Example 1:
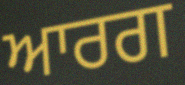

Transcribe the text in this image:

ਆਰਗ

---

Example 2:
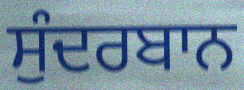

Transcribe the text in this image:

ਸੁੰਦਰਬਾਨ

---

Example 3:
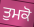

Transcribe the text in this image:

ਤੁਮਕੋ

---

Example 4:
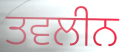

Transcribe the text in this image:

ਤਵਲੀਨ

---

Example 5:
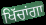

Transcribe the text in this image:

ਖਿੱਚਾਂਗਾ